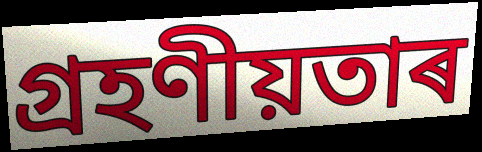
গ্ৰহণীয়তাৰ